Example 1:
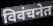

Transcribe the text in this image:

विवंचनेत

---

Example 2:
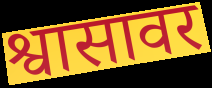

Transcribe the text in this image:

श्वासावर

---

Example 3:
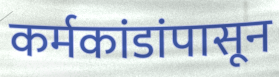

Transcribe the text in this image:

कर्मकांडांपासून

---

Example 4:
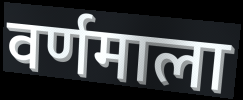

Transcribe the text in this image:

वर्णमाला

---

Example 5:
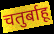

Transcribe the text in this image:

चतुर्बाहू